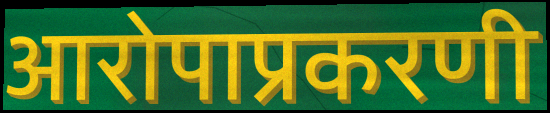
आरोपाप्रकरणी